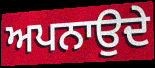
ਅਪਨਾਉਦੇ